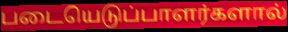
படையெடுப்பாளர்களால்